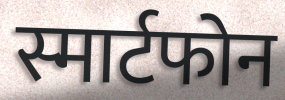
स्‍मार्टफोन